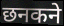
छनकने